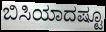
ಬಿಸಿಯಾದಷ್ಟೂ